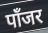
पाँजर